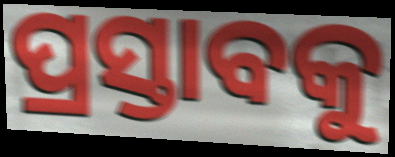
ପ୍ରସ୍ତାବକୁ